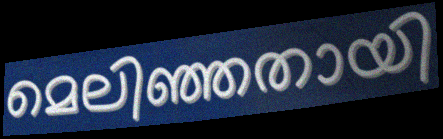
മെലിഞ്ഞതായി